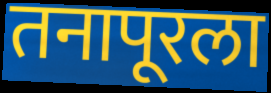
तनापूरला